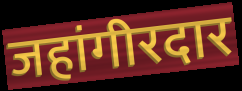
जहांगीरदार